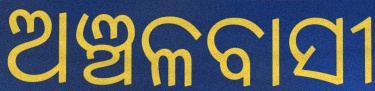
ଅଞ୍ଚଳବାସୀ